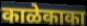
काळेकाका